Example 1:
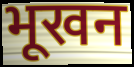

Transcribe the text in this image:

भूखन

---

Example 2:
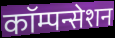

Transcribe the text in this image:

कॉम्पन्सेशन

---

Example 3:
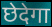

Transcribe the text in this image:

छेदेगा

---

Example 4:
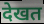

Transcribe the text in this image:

देखत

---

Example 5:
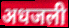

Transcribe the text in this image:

अधजली